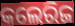
କଲେରିଜ